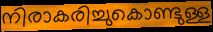
നിരാകരിച്ചുകൊണ്ടുള്ള